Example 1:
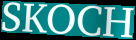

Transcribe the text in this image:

SKOCH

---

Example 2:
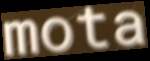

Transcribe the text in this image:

mota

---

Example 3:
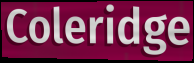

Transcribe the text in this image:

Coleridge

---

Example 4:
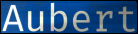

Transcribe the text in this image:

Aubert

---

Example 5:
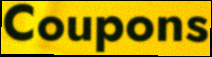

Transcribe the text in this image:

Coupons